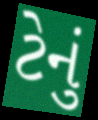
ટેનું